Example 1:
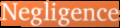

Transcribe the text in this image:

Negligence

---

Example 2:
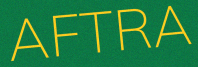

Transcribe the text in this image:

AFTRA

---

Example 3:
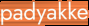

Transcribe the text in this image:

padyakke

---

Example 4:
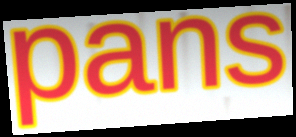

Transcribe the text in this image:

pans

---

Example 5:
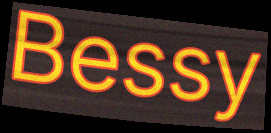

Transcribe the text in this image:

Bessy